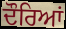
ਦੌਰਿਆਂ